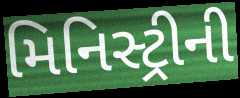
મિનિસ્ટ્રીની